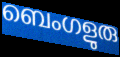
ബെംഗളുരു